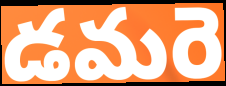
డమరె